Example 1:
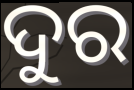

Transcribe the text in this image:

ଦୁର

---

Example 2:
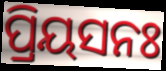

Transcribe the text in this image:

ପ୍ରିୟସନଃ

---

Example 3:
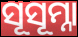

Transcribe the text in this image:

ସୂସୂମ୍ନା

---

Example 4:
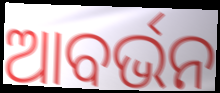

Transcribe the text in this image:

ଆବର୍ଭନ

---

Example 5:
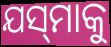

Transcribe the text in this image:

ଯସ୍‌ମାକୁ